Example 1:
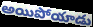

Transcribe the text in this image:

అయిపోయాడు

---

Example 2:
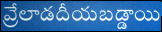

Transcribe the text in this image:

వ్రేలాడదీయబడ్డాయి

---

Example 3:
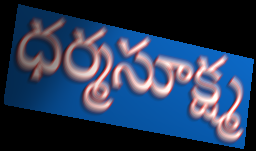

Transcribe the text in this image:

ధర్మసూక్ష్మ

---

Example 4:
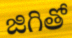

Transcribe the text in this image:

జిగితో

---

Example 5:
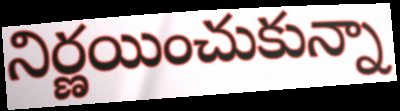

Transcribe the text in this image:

నిర్ణయించుకున్నా